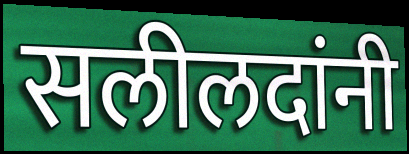
सलीलदांनी